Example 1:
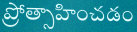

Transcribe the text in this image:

ప్రోత్సాహించడం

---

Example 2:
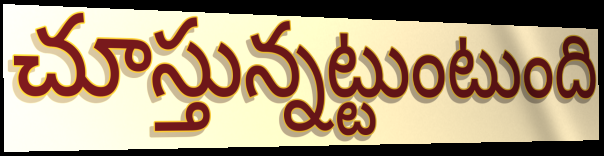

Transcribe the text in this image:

చూస్తున్నట్టుంటుంది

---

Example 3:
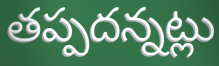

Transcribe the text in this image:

తప్పదన్నట్లు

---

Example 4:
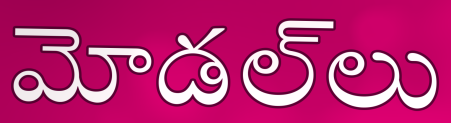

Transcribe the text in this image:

మోడల్‌లు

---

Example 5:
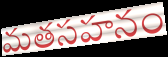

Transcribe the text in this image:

మతసహనం